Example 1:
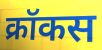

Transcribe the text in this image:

क्रॉकस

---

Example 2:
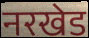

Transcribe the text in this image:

नरखेड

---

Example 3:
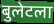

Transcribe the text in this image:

बुलेटला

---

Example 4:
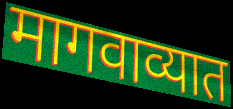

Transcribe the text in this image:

मागवाव्यात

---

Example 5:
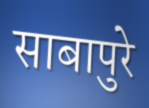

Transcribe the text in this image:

साबापुरे